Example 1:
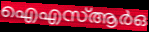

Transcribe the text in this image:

ഐഎസ്ആർഒ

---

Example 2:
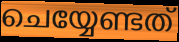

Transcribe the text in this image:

ചെയ്യേണ്ടത്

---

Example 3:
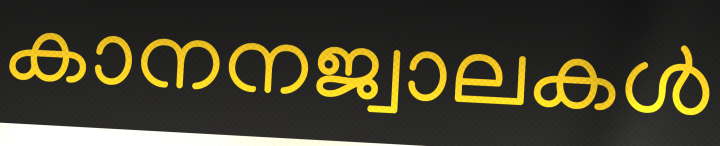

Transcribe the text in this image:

കാനനജ്വാലകൾ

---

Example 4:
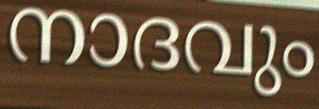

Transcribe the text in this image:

നാദവും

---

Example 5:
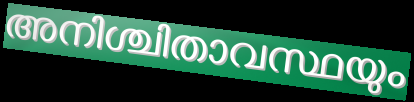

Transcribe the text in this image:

അനിശ്ചിതാവസ്ഥയും